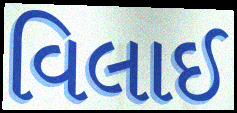
વિલાઈ